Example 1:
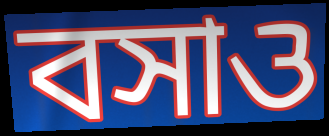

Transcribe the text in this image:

বসাও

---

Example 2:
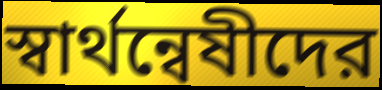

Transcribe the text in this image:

স্বার্থন্বেষীদের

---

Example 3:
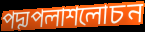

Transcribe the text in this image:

পদ্মপলাশলোচন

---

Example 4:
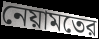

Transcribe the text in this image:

নেয়ামতের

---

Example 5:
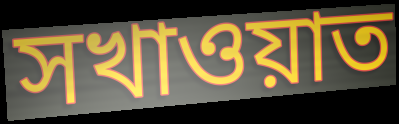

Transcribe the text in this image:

সখাওয়াত